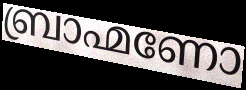
ബ്രാഹ്മണോ